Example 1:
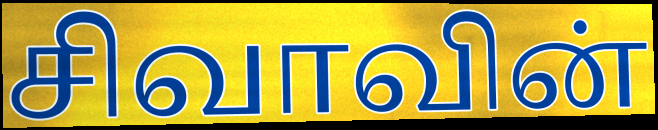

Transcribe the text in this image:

சிவாவின்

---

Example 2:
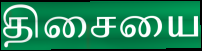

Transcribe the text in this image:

திசையை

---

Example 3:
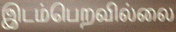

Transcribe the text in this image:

இடம்பெறவில்லை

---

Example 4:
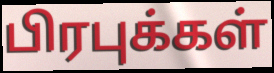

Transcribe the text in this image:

பிரபுக்கள்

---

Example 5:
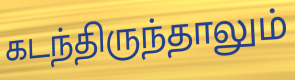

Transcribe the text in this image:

கடந்திருந்தாலும்